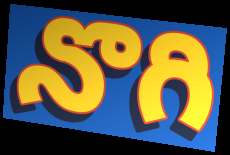
నొగి